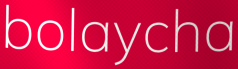
bolaycha